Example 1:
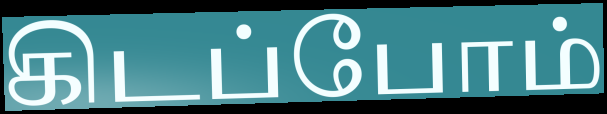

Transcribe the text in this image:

கிடப்போம்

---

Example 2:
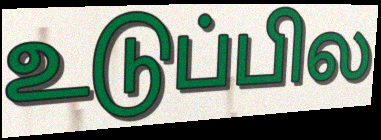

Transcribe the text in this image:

உடுப்பில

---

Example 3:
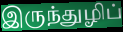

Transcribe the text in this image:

இருந்துழிப்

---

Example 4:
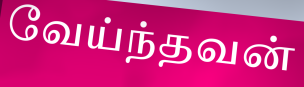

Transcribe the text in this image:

வேய்ந்தவன்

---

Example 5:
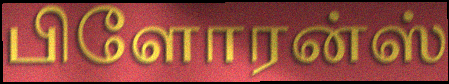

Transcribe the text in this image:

பிளோரன்ஸ்